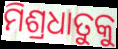
ମିଶ୍ରଧାତୁକୁ